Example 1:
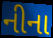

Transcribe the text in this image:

નીના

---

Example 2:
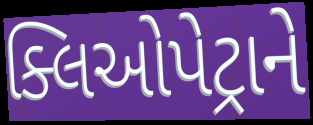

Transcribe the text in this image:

ક્લિઓપેટ્રાને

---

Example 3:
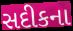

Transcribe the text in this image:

સદીકના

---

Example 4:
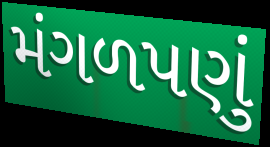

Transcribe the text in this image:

મંગળપણું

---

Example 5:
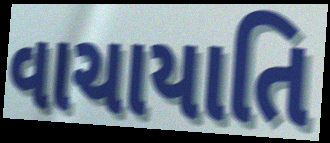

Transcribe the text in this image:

વાચાયાતિ